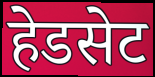
हेडसेट